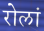
रोलां